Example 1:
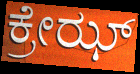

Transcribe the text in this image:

ಕ್ರೇಝ್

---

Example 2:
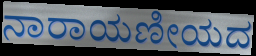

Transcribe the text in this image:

ನಾರಾಯಣೀಯದ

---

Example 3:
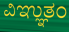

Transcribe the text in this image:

ವಿಞ್ಞುತಂ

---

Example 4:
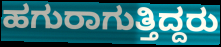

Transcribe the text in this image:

ಹಗುರಾಗುತ್ತಿದ್ದರು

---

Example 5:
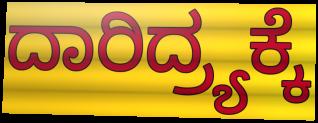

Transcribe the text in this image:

ದಾರಿದ್ರ್ಯಕ್ಕೆ